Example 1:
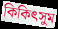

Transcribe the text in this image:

কিকিৎসুম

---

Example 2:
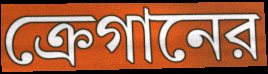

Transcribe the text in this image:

ক্রেগানের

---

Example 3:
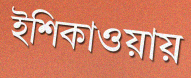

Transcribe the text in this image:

ইশিকাওয়ায়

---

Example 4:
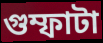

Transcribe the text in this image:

গুম্ফাটা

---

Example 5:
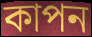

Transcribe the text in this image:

কাপন